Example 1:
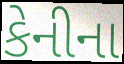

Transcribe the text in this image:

કેનીના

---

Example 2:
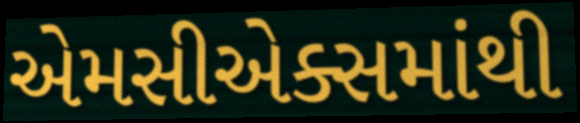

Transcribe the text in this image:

એમસીએક્સમાંથી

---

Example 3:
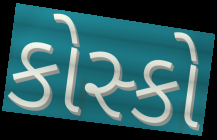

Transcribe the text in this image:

કોસ્કો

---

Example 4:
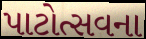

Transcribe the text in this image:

પાટોત્સવના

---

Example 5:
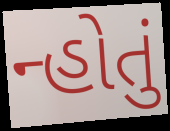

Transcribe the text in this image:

ન્હોતું